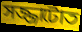
সজ্জাটোত